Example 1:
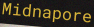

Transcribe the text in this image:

Midnapore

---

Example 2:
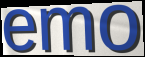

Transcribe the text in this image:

emo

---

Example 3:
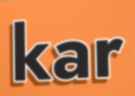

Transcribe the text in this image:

kar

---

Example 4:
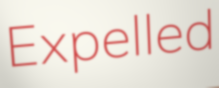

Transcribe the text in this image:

Expelled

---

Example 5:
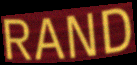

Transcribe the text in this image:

RAND